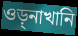
ওড়্নাখানি